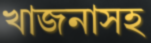
খাজনাসহ